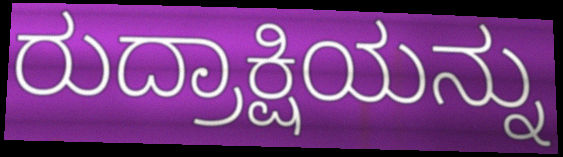
ರುದ್ರಾಕ್ಷಿಯನ್ನು